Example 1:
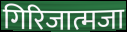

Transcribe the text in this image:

गिरिजात्मजा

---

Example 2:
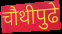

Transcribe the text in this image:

चौथीपुढे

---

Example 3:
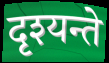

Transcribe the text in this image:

दृश्यन्ते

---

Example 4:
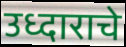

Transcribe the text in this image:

उध्दाराचे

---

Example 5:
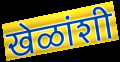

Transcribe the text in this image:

खेळांशी